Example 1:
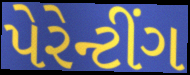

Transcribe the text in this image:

પેરેન્ટીંગ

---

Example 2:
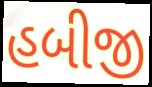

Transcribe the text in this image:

હબીજી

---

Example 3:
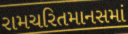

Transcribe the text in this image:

રામચરિતમાનસમાં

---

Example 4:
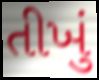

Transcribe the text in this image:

તીખું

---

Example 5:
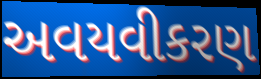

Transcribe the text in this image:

અવયવીકરણ